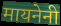
मायनेनी